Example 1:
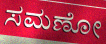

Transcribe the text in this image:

ಸಮಣೋ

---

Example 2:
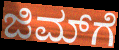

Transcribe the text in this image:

ಜಿಮ್‌ಗೆ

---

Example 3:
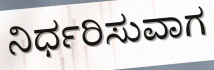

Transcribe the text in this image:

ನಿರ್ಧರಿಸುವಾಗ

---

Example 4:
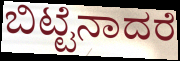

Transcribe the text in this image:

ಬಿಟ್ಟೆನಾದರೆ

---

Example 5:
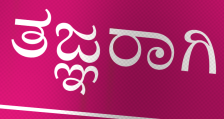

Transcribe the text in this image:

ತಜ್ಞರಾಗಿ